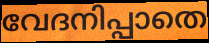
വേദനിപ്പാതെ